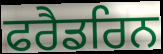
ਫਰੈਡਰਿਨ